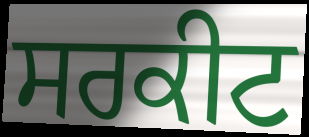
ਸਰਕੀਟ